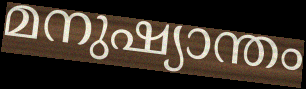
മനുഷ്യാന്തം